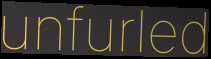
unfurled